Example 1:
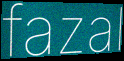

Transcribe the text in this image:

fazal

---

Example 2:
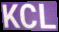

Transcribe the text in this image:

KCL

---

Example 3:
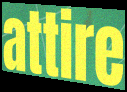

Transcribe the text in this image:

attire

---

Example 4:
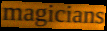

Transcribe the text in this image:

magicians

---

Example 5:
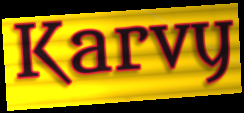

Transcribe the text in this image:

Karvy